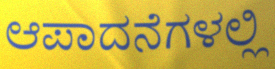
ಆಪಾದನೆಗಳಲ್ಲಿ